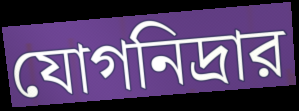
যোগনিদ্রার